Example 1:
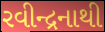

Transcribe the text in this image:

રવીન્દ્રનાથી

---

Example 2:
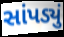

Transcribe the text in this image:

સાંપડ્યું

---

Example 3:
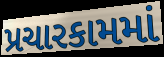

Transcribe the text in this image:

પ્રચારકામમાં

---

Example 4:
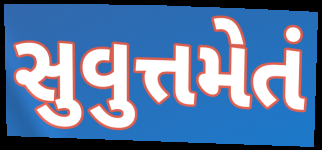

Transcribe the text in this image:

સુવુત્તમેતં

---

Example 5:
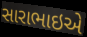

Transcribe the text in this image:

સારાભાઇએ